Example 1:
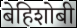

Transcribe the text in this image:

बेहिशोबी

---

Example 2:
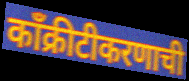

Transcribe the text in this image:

काँक्रीटीकरणाची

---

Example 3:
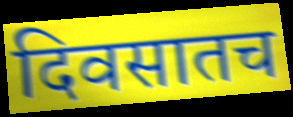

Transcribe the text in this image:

दिवसातच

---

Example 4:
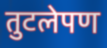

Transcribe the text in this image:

तुटलेपण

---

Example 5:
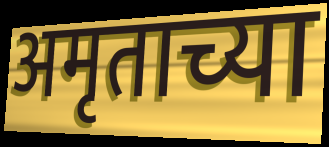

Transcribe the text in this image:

अमृताच्या